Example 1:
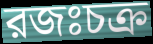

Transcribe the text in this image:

রজঃচক্র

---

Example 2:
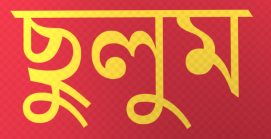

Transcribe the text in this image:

ছুলুম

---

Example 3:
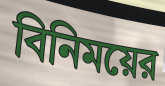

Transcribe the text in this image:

বিনিময়ের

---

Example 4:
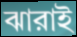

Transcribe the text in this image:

ঝারাই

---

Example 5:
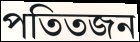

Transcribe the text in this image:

পতিতজন